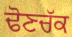
ਢੋਣਚੱਕ